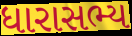
ધારાસભ્ય